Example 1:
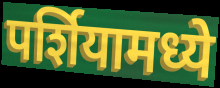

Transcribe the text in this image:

पर्शियामध्ये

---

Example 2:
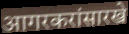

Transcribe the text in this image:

आगरकरांसारखे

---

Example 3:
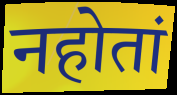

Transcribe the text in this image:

नहोतां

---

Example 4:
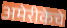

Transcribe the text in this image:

अमेरीकेचे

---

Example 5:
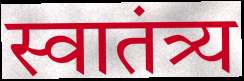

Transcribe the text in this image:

स्‍वातंत्र्य